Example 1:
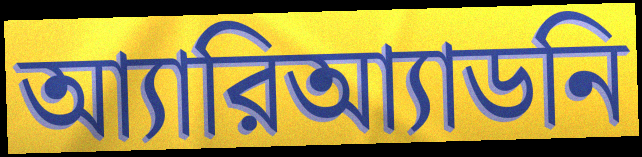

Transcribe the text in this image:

আ্যারিআ্যাডনি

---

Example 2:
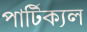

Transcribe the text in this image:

পার্টিক্যল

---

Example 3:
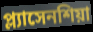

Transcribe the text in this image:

প্ল্যাসেনশিয়া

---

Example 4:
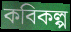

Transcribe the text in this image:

কবিকল্প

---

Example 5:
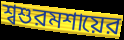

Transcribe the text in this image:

শ্বশুরমশায়ের